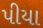
પીયા